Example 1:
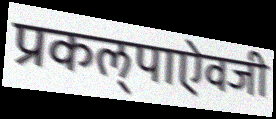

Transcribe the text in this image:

प्रकल्पाऐवजी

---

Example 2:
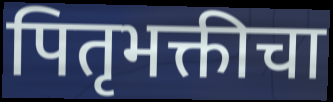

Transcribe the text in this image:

पितृभक्तीचा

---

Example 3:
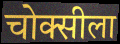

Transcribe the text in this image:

चोक्सीला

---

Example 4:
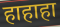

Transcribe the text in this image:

हाहाहा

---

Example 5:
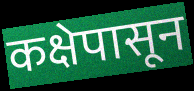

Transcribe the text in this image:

कक्षेपासून